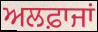
ਅਲਫ਼ਾਜਾਂ